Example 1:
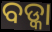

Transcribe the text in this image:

ବଡ୍କା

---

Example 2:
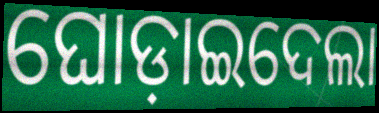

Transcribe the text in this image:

ଘୋଡ଼ାଇଦେଲା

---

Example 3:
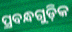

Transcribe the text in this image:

ପ୍ରବନ୍ଧଗୁଡ଼ିକ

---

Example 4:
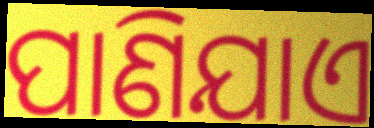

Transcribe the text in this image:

ପାଣିଯାଏ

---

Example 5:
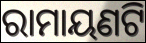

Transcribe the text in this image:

ରାମାୟଣଟି